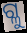
ଗ୍ଳୁ